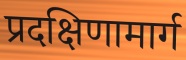
प्रदक्षिणामार्ग